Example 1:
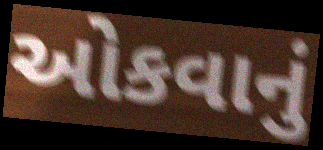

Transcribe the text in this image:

ઓકવાનું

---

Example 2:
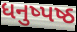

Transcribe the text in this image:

ધનુષ્પષ્ઠ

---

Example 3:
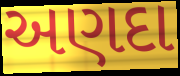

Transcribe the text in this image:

અણદા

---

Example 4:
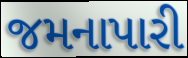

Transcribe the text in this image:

જમનાપારી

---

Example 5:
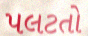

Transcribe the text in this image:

પલટતો